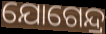
ଯୋଗେନ୍ଦ୍ର